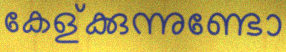
കേള്ക്കുന്നുണ്ടോ